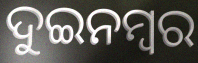
ଦୁଇନମ୍ୱର